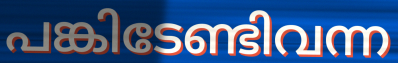
പങ്കിടേണ്ടിവന്ന